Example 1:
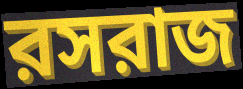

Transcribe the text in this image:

রসরাজ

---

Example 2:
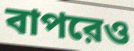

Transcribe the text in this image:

বাপরেও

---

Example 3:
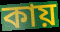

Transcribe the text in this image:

কায়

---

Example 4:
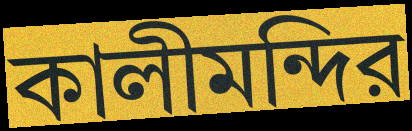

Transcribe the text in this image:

কালীমন্দির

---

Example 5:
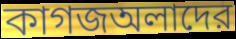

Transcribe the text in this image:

কাগজঅলাদের